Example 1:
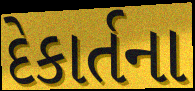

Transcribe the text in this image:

દેકાર્તના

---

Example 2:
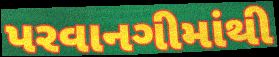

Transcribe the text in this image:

પરવાનગીમાંથી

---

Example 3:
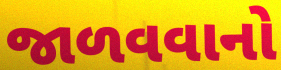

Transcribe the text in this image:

જાળવવાનો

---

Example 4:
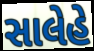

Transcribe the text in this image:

સાલેહે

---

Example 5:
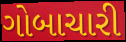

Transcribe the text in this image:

ગોબાચારી